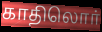
காதிலொர்